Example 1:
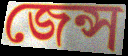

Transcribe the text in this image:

জেন্স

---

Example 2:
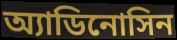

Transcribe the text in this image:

অ্যাডিনোসিন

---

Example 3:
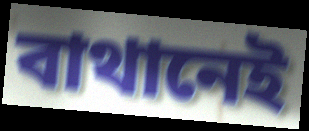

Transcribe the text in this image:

বাথানেই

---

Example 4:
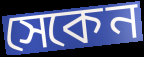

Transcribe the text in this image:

সেকেন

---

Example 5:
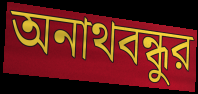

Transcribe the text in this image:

অনাথবন্ধুর